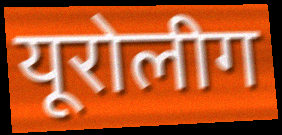
यूरोलीग